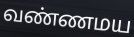
வண்ணமய